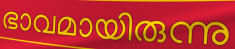
ഭാവമായിരുന്നു